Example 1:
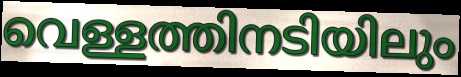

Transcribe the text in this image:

വെള്ളത്തിനടിയിലും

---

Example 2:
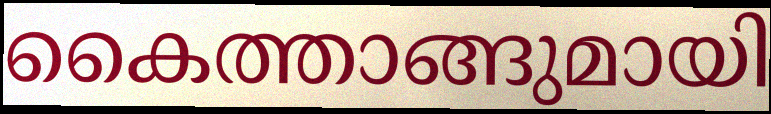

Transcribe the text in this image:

കൈത്താങ്ങുമായി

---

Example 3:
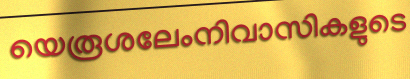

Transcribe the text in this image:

യെരൂശലേംനിവാസികളുടെ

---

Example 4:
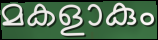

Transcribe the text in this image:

മകളാകും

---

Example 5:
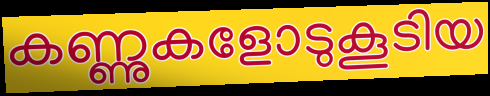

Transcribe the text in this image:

കണ്ണുകളോടുകൂടിയ